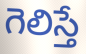
గెలిస్తే